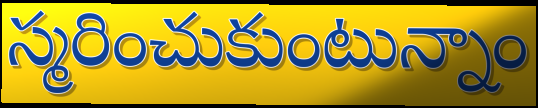
స్మరించుకుంటున్నాం